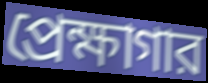
প্রেক্ষাগার